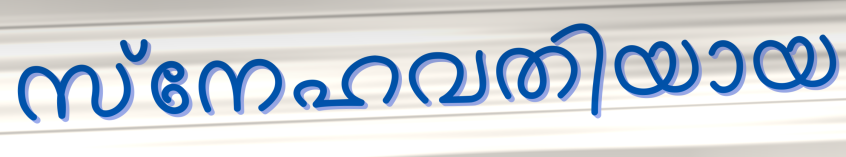
സ്‌നേഹവതിയായ